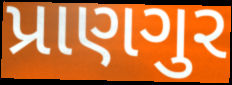
પ્રાણગુર